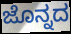
ಜೊನ್ನದ